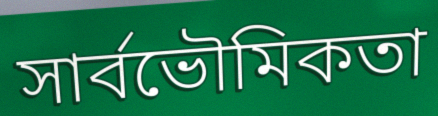
সার্বভৌমিকতা